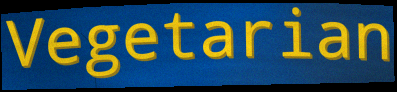
Vegetarian